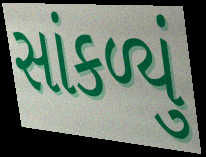
સાંકળ્યું